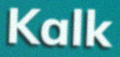
Kalk